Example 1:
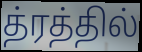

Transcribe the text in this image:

த்ரத்தில்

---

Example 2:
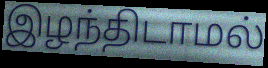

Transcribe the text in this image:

இழந்திடாமல்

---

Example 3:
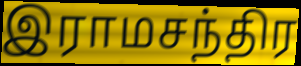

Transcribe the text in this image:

இராமசந்திர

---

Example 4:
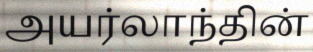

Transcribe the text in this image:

அயர்லாந்தின்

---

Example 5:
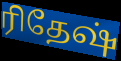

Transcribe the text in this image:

ரிதேஷ்